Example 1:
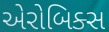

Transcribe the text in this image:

એરોબિક્સ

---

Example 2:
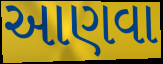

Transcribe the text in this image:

આણવા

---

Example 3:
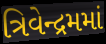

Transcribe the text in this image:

ત્રિવેન્દ્રમમાં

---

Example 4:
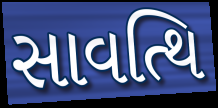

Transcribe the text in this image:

સાવત્થિ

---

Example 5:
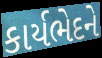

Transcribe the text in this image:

કાર્યભેદને